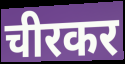
चीरकर